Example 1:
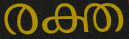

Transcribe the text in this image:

രക്ത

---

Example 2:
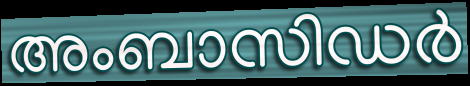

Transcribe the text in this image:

അംബാസിഡർ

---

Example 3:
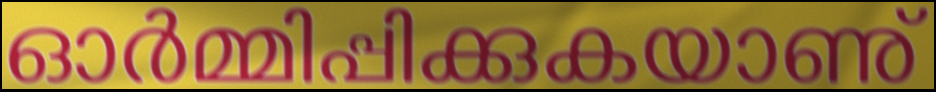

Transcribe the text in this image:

ഓർമ്മിപ്പിക്കുകയാണു്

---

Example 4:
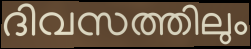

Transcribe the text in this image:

ദിവസത്തിലും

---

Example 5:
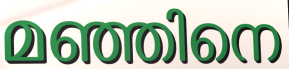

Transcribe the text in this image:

മഞ്ഞിനെ